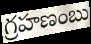
గ్రహణంబు